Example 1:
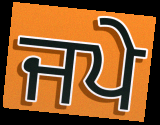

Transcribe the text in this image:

ਜਪੇ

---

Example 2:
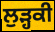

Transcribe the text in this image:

ਲੁੜ੍ਹਕੀ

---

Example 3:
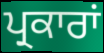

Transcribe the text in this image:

ਪ੍ਰਕਾਰਾਂ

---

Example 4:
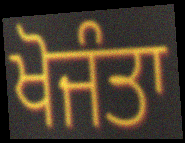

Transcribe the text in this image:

ਖੋਜੰਤਾ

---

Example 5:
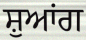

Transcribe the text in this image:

ਸ਼ੁਆਂਗ